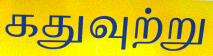
கதுவுற்று